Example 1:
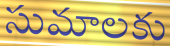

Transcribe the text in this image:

సుమాలకు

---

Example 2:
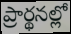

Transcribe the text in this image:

ప్రార్థనల్లో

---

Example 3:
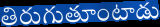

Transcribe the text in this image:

తిరుగుతూంటాడు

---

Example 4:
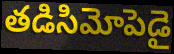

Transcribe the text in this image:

తడిసిమోపెడై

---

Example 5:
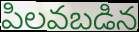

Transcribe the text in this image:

పిలవబడిన